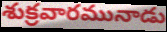
శుక్రవారమునాడు